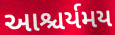
આશ્ચર્યમય